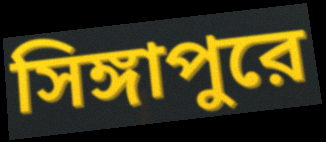
সিঙ্গাপুরে